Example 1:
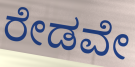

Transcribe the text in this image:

ರೇಡವೇ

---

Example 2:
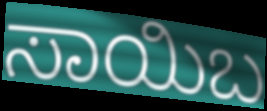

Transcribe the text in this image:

ಸಾಯಿಬ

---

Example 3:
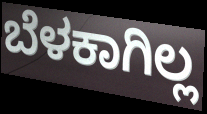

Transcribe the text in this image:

ಬೆಳಕಾಗಿಲ್ಲ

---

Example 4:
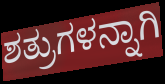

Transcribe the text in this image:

ಶತ್ರುಗಳನ್ನಾಗಿ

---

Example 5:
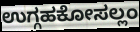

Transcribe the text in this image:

ಉಗ್ಗಹಕೋಸಲ್ಲಂ